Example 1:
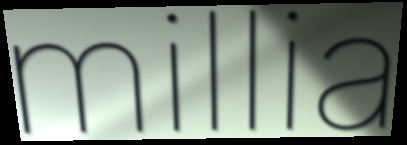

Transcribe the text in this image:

millia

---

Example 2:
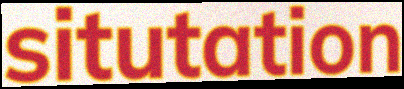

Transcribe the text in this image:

situtation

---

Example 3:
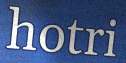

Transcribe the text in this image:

hotri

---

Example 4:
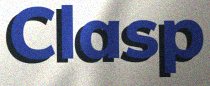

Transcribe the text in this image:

Clasp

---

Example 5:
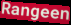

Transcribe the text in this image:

Rangeen